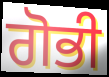
ਗੋਭੀ